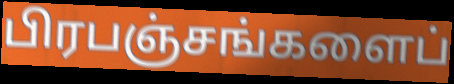
பிரபஞ்சங்களைப்